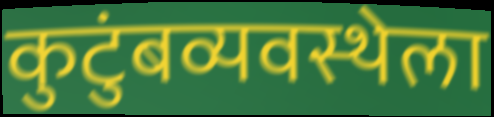
कुटुंबव्यवस्थेला